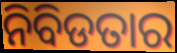
ନିବିଡତାର